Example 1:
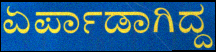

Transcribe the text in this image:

ಏರ್ಪಾಡಾಗಿದ್ದ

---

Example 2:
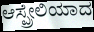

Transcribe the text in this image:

ಆಸ್ಪ್ರೇಲಿಯಾದ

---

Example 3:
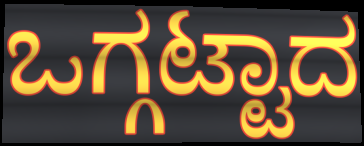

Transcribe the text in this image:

ಒಗ್ಗಟ್ಟಾದ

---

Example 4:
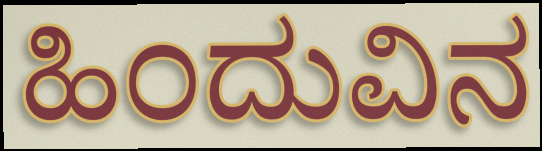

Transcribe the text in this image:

ಹಿಂದುವಿನ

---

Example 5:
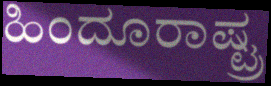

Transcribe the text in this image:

ಹಿಂದೂರಾಷ್ಟ್ರ